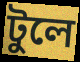
টুলে